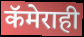
कॅमेराही